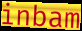
inbam